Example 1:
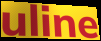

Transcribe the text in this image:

uline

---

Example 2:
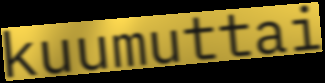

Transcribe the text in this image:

kuumuttai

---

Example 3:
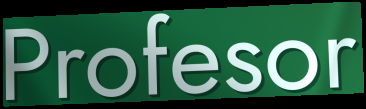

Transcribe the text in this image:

Profesor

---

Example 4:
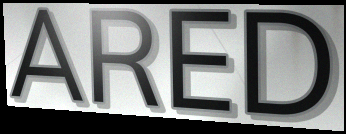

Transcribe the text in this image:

ARED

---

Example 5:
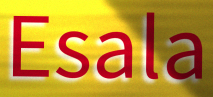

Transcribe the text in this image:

Esala